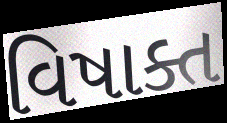
વિષાક્ત